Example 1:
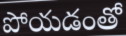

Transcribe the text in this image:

పోయడంతో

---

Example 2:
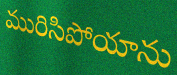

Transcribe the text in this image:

మురిసిపోయాను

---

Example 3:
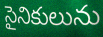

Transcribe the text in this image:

సైనికులును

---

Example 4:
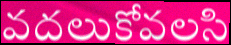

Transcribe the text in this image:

వదలుకోవలసి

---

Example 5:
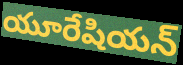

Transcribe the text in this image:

యూరేషియన్